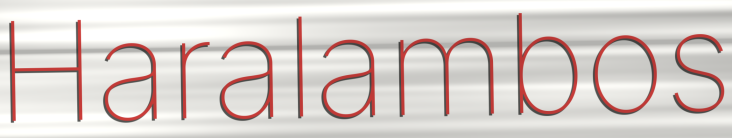
Haralambos